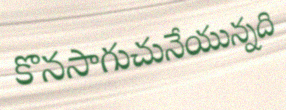
కొనసాగుచునేయున్నది